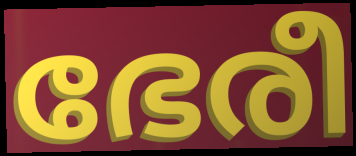
ഭേരീ